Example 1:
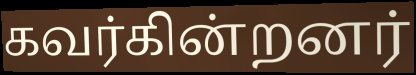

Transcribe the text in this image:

கவர்கின்றனர்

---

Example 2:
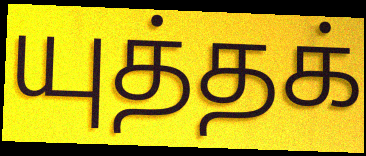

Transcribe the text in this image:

யுத்தக்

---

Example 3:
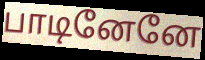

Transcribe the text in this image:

பாடினேனே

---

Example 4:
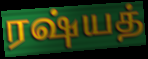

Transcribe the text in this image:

ரஷ்யத்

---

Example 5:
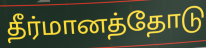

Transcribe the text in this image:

தீர்மானத்தோடு